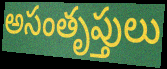
అసంతృప్తులు